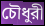
চৌধুরী